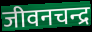
जीवनचन्द्र